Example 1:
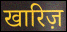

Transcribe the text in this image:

खारिज़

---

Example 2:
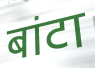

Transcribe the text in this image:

बांटा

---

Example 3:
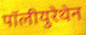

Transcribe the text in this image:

पॉलीयुरेथेन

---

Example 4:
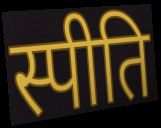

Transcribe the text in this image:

स्पीति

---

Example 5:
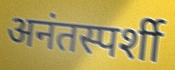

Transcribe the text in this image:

अनंतस्पर्शी